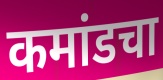
कमांडचा